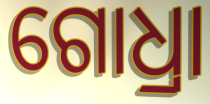
ଗୋଧ୍ରା